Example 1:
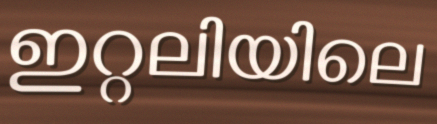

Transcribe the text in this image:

ഇറ്റലിയിലെ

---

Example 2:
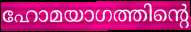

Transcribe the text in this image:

ഹോമയാഗത്തിന്റെ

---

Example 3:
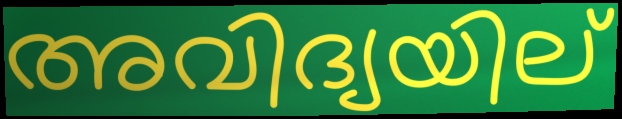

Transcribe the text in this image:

അവിദ്യയില്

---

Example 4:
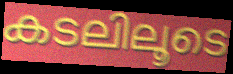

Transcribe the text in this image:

കടലിലൂടെ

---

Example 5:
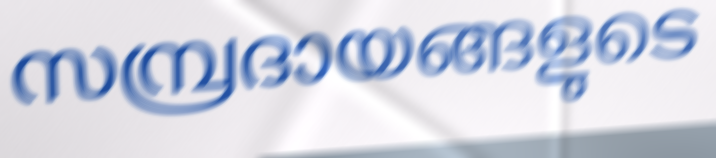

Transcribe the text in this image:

സമ്പ്രദായങ്ങളുടെ